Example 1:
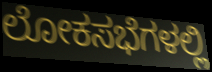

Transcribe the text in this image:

ಲೋಕಸಭೆಗಳಲ್ಲಿ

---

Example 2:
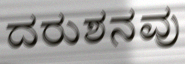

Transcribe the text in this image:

ದರುಶನವು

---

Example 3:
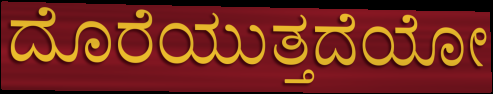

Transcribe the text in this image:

ದೊರೆಯುತ್ತದೆಯೋ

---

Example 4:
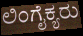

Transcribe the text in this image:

ಲಿಂಗೈಕ್ಯರು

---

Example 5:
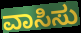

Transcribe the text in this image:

ವಾಸಿಸು